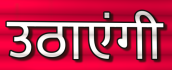
उठाएंगी